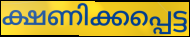
ക്ഷണിക്കപ്പെട്ട